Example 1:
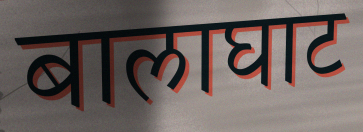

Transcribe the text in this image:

बालाघाट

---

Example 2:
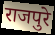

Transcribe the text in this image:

राजपुरे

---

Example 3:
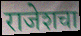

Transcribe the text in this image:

राजेशचा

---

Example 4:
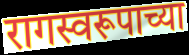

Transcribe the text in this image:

रागस्वरूपाच्या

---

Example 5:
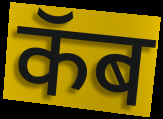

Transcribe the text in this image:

कॅब